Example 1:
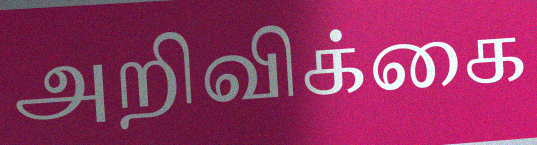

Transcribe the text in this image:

அறிவிக்கை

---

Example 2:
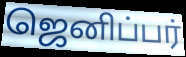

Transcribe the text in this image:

ஜெனிப்பர்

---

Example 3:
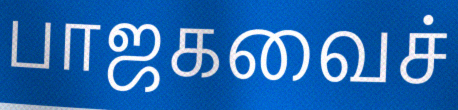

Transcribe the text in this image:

பாஜகவைச்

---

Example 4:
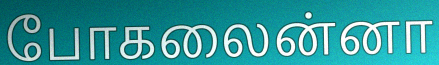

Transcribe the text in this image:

போகலைன்னா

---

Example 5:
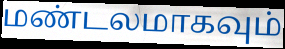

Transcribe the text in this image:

மண்டலமாகவும்